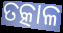
ତତ୍କାଳ